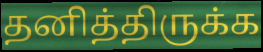
தனித்திருக்க